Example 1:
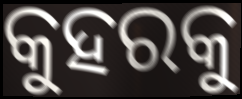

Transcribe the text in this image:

କୁହରକୁ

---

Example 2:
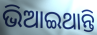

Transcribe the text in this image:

ଭିଆଇଥାନ୍ତି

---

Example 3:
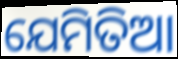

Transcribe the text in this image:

ଯେମିତିଆ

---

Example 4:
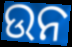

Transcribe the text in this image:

ଉନ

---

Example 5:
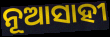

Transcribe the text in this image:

ନୂଆସାହୀ